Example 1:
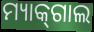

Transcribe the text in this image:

ମ୍ୟାକ୍‌ଗାଲ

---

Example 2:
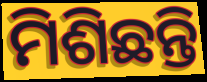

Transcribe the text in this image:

ମିଶିଛନ୍ତି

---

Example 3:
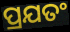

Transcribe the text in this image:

ପ୍ରଯତଂ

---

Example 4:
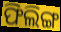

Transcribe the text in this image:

ଫିଲିଙ୍ଗ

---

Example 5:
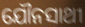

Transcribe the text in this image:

ଯୌନସାଥୀ